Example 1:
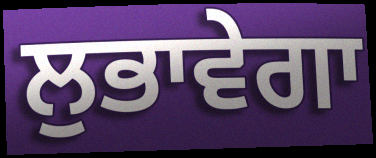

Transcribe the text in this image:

ਲੁਭਾਵੇਗਾ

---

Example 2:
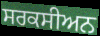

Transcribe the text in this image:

ਸਰਕਸੀਅਨ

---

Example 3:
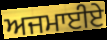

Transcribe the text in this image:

ਅਜਮਾਈਏ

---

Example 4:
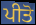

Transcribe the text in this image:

ਪੀਤੋ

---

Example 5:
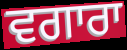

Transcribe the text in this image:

ਵਗਾਰਾ